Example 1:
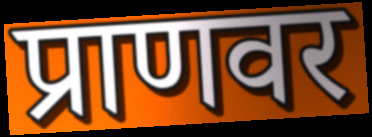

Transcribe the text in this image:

प्राणवर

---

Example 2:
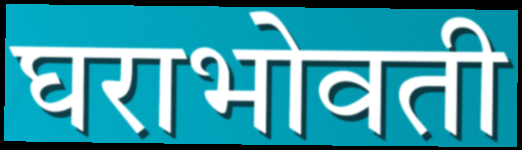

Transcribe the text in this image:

घराभोवती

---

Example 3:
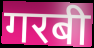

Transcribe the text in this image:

गरबी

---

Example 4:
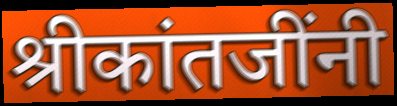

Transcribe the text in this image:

श्रीकांतजींनी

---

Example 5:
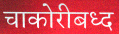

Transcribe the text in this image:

चाकोरीबध्द